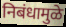
निबंधामुळे